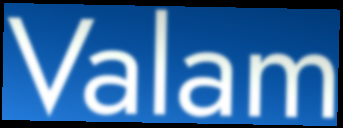
Valam